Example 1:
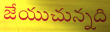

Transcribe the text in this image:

జేయుచున్నది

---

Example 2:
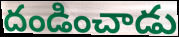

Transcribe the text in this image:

దండించాడు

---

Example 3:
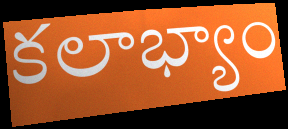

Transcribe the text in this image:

కలాభ్యాం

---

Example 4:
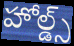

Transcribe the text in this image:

హోల్డ్స్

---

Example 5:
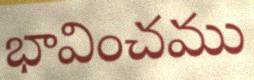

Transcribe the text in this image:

భావించము